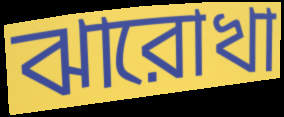
ঝারোখা